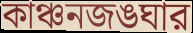
কাঞ্চনজঙঘার